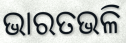
ଭାରତଭଳି